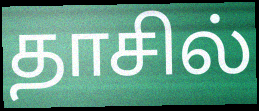
தாசில்